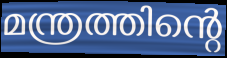
മന്ത്രത്തിന്റെ